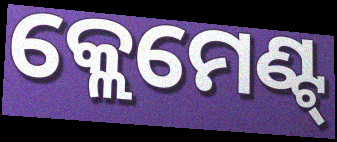
କ୍ଲେମେଣ୍ଟ୍